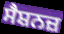
ਸੈਸ਼ਨਜ਼